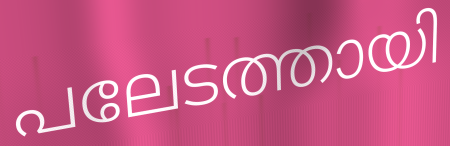
പലേടത്തായി